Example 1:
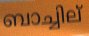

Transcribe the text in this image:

ബാച്ചില്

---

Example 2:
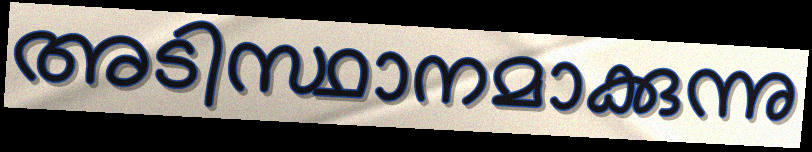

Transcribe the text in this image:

അടിസ്ഥാനമാക്കുന്നു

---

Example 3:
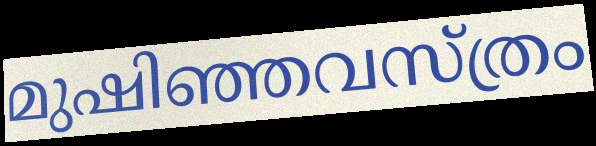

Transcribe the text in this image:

മുഷിഞ്ഞവസ്ത്രം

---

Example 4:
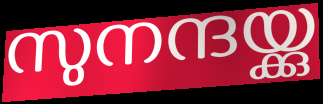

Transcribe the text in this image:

സുനന്ദയ്ക്കു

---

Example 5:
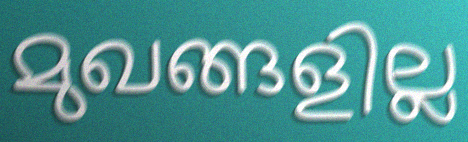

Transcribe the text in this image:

മുഖങ്ങളില്ല